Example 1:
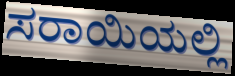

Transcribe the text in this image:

ಸರಾಯಿಯಲ್ಲಿ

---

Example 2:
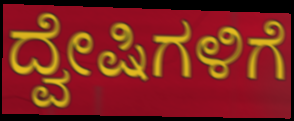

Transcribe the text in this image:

ದ್ವೇಷಿಗಳಿಗೆ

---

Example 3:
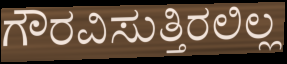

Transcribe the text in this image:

ಗೌರವಿಸುತ್ತಿರಲಿಲ್ಲ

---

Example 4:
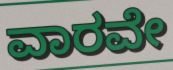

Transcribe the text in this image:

ವಾರವೇ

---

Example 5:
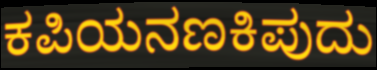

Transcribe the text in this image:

ಕಪಿಯನಣಕಿಪುದು